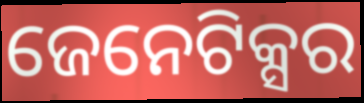
ଜେନେଟିକ୍ସର